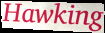
Hawking